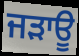
ਜੜਾਊ